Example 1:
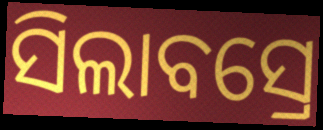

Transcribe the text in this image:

ସିଲାବସ୍ରେ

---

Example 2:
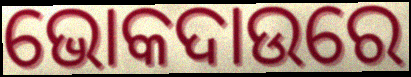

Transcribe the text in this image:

ଭୋକଦାଉରେ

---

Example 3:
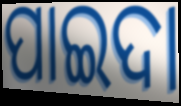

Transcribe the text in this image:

ପାଇଦା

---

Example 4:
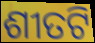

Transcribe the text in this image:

ଶୀତଟି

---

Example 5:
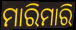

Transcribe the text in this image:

ମାରିମାରି